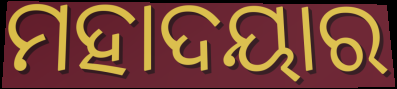
ମହାଦୟାର